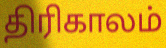
திரிகாலம்